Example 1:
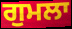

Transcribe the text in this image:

ਗੁਮਲਾ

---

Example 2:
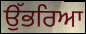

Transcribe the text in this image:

ਉੱਭਰਿਆ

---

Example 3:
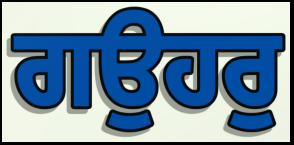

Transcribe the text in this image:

ਗਉਹਰੁ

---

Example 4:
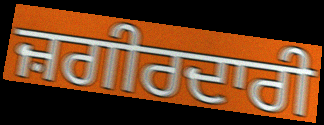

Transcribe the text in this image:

ਜ਼ਗੀਰਦਾਰੀ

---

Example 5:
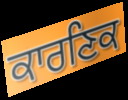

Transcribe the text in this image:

ਕਾਰਣਿਕ